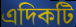
এদিকটি